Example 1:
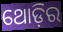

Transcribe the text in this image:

ଥୋଡ଼ିର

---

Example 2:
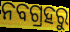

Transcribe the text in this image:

ନବଗ୍ରହରୁ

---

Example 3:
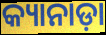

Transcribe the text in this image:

କ୍ୟାନାଡ଼ା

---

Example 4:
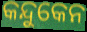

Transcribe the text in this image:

କନ୍ଦୁକେନ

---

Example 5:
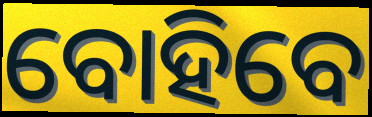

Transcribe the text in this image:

ବୋହିବେ